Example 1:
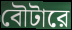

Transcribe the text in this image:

বৌটারে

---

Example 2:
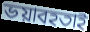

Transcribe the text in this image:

ভয়াবহতাই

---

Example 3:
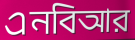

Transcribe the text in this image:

এনবিআর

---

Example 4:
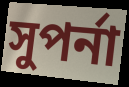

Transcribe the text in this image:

সুপর্না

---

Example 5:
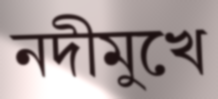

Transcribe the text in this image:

নদীমুখে